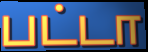
பட்டா